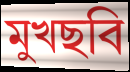
মুখছবি